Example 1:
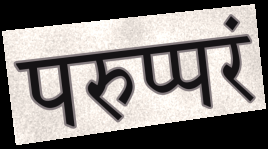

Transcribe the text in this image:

परुप्परं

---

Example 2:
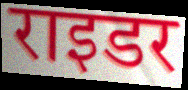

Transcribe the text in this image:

राइडर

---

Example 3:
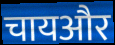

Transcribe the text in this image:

चायऔर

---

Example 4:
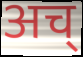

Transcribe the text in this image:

अच्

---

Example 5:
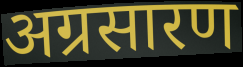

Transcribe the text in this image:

अग्रसारण